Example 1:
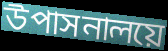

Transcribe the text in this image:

উপাসনালয়ে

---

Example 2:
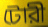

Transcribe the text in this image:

টোরী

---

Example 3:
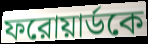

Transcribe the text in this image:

ফরোয়ার্ডকে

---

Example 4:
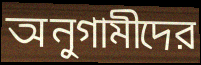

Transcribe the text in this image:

অনুগামীদের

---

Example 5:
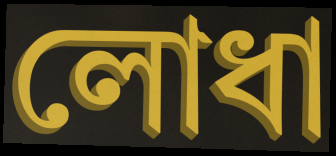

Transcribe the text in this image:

লোধা